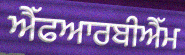
ਐੱਫਆਰਬੀਐੱਮ